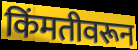
किंमतीवरून